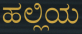
ಹಲ್ಲಿಯ